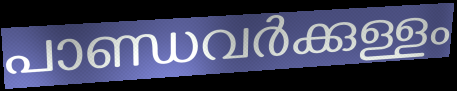
പാണ്ഡവർക്കുള്ളം